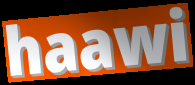
haawi